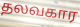
தலவகார